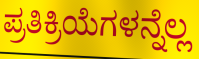
ಪ್ರತಿಕ್ರಿಯೆಗಳನ್ನೆಲ್ಲ